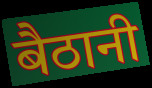
बैठानी